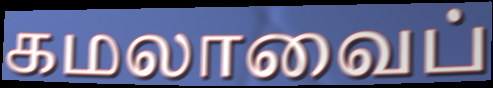
கமலாவைப்